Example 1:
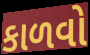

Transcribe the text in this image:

કાળવો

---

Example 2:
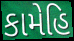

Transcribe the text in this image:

કામેહિ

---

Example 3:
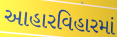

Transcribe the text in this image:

આહારવિહારમાં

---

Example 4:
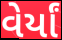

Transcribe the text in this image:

વેર્યાં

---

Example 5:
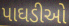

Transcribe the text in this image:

પાઘડીઓ